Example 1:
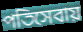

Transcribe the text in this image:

পতিসেবায়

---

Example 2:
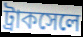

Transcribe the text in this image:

ট্রাকসেলে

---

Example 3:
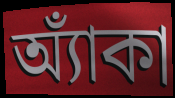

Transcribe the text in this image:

অ্যাঁকা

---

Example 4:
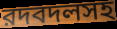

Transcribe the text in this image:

রদবদলসহ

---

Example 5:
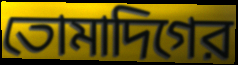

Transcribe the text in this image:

তোমাদিগের